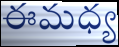
ఈమధ్య